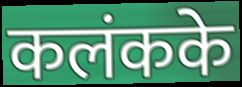
कलंकके